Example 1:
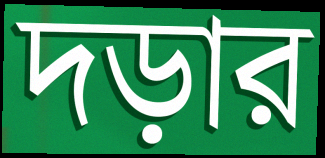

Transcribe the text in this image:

দড়ার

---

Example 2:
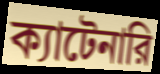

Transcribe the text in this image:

ক্যাটেনারি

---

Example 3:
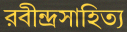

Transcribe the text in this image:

রবীন্দ্রসাহিত্য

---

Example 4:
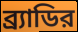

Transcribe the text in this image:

ব্র্যাডির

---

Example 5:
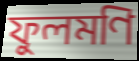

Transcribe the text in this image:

ফুলমণি